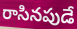
రాసినపుడే